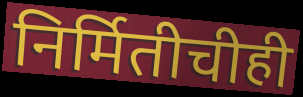
निर्मितीचीही